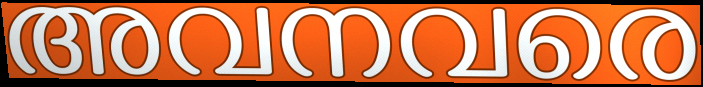
അവനവരെ